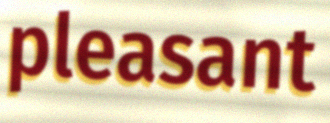
pleasant